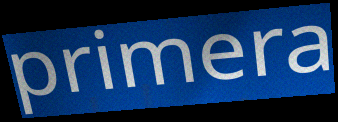
primera